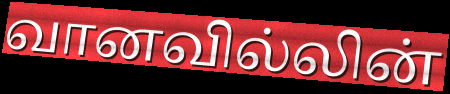
வானவில்லின்